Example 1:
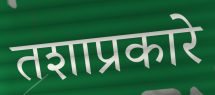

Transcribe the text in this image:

तशाप्रकारे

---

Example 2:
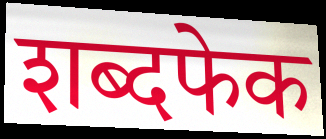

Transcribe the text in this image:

शब्दफेक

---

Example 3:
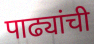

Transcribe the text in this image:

पाढ्यांची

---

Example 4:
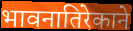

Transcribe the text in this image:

भावनातिरेकाने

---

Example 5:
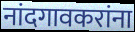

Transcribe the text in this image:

नांदगावकरांना